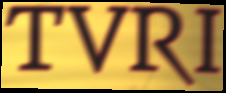
TVRI